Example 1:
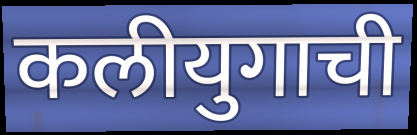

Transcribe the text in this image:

कलीयुगाची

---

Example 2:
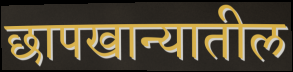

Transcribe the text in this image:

छापखान्यातील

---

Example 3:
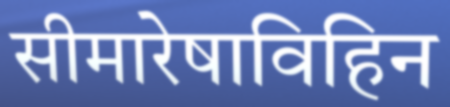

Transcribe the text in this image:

सीमारेषाविहिन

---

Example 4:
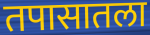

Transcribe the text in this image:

तपासातला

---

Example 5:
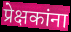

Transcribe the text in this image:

प्रेक्षकांना